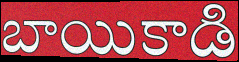
బాయికాడి